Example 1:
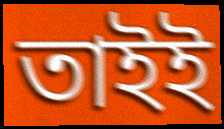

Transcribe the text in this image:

তাইই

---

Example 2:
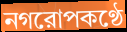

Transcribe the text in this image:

নগরোপকণ্ঠে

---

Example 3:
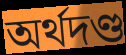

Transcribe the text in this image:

অর্থদণ্ড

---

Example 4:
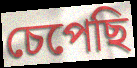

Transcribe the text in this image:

চেপেছি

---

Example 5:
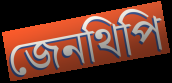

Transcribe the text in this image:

জেনথিপি